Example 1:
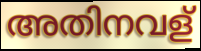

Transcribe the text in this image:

അതിനവള്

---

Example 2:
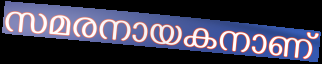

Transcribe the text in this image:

സമരനായകനാണ്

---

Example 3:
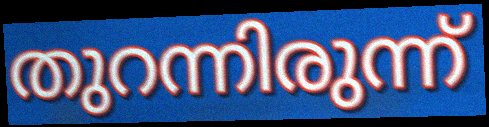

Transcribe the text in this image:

തുറന്നിരുന്ന്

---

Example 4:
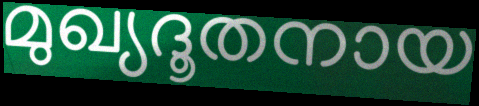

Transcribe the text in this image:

മുഖ്യദൂതനായ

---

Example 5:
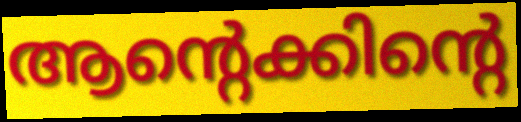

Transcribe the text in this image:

ആന്റെക്കിന്റെ